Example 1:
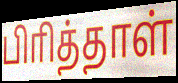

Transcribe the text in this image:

பிரித்தாள்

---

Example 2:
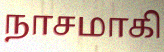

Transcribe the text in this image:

நாசமாகி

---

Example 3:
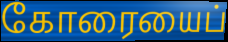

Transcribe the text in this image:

கோரையைப்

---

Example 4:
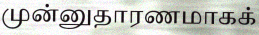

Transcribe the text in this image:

முன்னுதாரணமாகக்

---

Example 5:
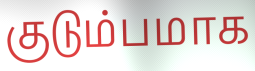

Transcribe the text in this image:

குடும்பமாக